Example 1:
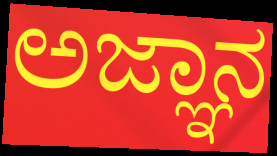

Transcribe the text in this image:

ಅಜ್ಞಾನ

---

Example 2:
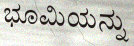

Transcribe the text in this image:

ಭೂಮಿಯನ್ನು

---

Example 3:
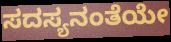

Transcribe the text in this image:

ಸದಸ್ಯನಂತೆಯೇ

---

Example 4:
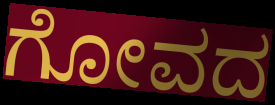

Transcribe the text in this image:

ಗೋವದ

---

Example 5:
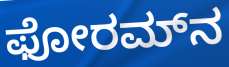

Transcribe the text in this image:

ಫೋರಮ್‌ನ